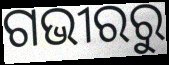
ଗଭୀରରୁ